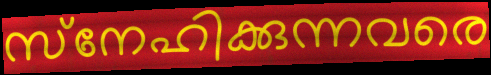
സ്‌നേഹിക്കുന്നവരെ